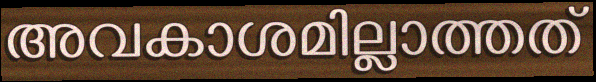
അവകാശമില്ലാത്തത്